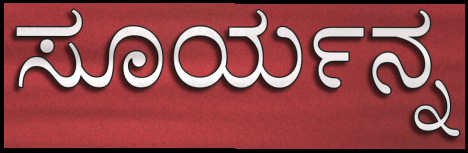
ಸೂರ್ಯನ್ನ